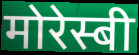
मोरेस्बी